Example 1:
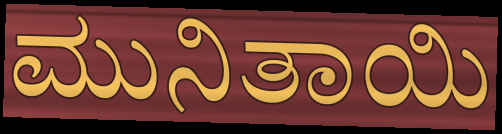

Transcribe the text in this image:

ಮುನಿತಾಯಿ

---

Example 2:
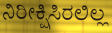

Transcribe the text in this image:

ನಿರೀಕ್ಷಿಸಿರಲಿಲ್ಲ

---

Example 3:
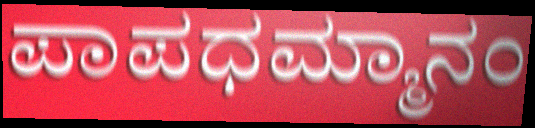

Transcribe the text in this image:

ಪಾಪಧಮ್ಮಾನಂ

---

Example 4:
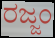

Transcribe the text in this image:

ರಜ್ಜಂ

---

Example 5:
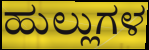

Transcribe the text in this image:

ಹುಲ್ಲುಗಳ